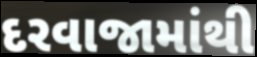
દરવાજામાંથી